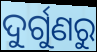
ଦୁର୍ଗୁଣରୁ